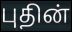
புதின்